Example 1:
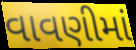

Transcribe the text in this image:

વાવણીમાં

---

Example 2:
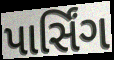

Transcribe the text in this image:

પાર્સિંગ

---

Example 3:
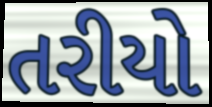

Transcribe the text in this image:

તરીયો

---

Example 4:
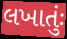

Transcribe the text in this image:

લખાતુંઃ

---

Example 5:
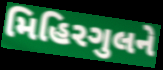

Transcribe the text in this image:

મિહિરગુલને